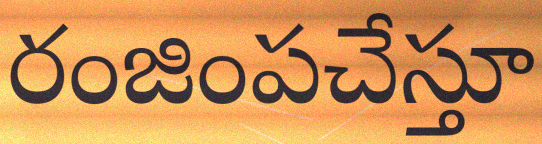
రంజింపచేస్తూ